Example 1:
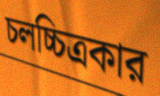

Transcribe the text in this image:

চলচ্চিত্রকার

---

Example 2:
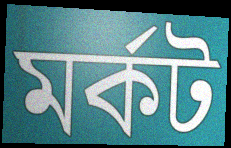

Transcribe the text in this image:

মর্কট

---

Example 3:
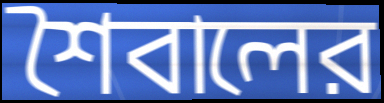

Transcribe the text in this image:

শৈবালের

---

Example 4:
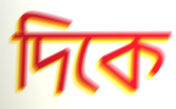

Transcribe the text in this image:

দিকে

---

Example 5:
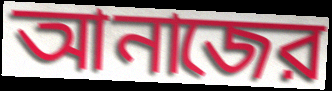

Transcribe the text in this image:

আনাজের